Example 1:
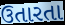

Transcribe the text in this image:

ઉતારતા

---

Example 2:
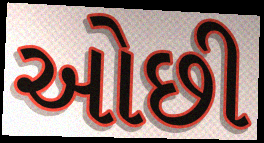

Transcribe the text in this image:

ઓછી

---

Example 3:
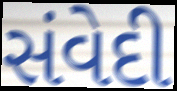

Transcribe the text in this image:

સંવેદી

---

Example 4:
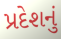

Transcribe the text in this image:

પ્રદેશનું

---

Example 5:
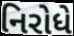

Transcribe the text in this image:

નિરોધે